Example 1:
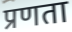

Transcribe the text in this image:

प्रणता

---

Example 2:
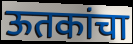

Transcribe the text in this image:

ऊतकांचा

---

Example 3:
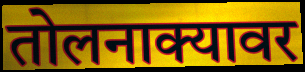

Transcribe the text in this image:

तोलनाक्यावर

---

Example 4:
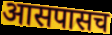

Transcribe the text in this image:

आसपासच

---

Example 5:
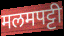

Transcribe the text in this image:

मलमपट्टी